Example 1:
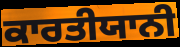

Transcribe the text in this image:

ਕਾਰਤੀਯਾਨੀ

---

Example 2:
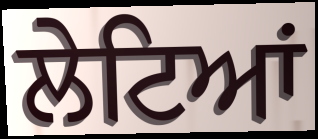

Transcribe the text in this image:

ਲੇਟਿਆਂ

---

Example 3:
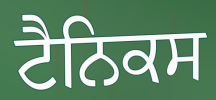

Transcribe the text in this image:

ਟੈਨਿਕਸ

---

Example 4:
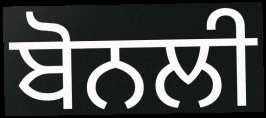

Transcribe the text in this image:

ਬੋਨਲੀ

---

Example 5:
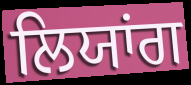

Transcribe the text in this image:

ਲਿਯਾਂਗ